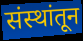
संस्थांतून